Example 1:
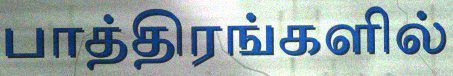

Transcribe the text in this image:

பாத்திரங்களில்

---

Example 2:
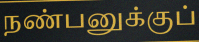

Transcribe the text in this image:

நண்பனுக்குப்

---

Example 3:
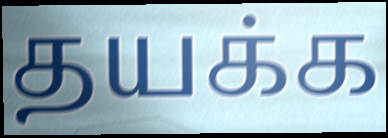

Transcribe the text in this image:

தயக்க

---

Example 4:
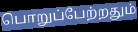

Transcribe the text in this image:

பொறுப்பேற்றதும்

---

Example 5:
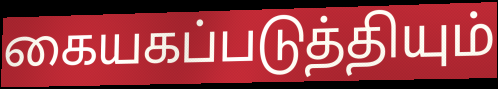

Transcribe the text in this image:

கையகப்படுத்தியும்